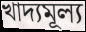
খাদ্যমূল্য